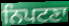
ਨਿਪਟਣਾ